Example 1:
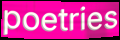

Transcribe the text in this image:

poetries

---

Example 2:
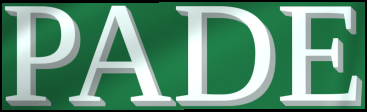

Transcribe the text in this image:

PADE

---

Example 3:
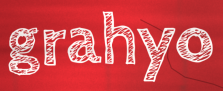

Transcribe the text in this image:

grahyo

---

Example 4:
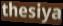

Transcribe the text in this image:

thesiya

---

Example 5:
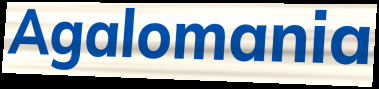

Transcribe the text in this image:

Agalomania